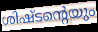
ശിഷ്ടന്റെയും